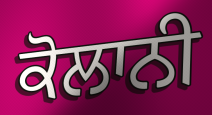
ਕੋਲਾਨੀ